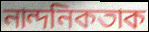
নান্দনিকতাক